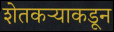
शेतकऱ्याकडून